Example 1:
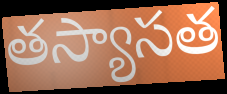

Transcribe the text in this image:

తస్యాసత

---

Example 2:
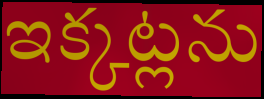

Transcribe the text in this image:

ఇక్కట్లను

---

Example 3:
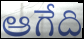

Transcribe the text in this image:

ఆగేది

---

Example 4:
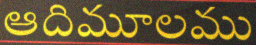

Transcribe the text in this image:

ఆదిమూలము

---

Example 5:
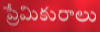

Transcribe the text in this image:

ప్రేమికురాలు